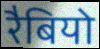
रैबियो